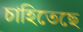
চাহিতেছে